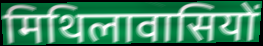
मिथिलावासियों